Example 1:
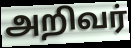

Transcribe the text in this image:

அறிவர்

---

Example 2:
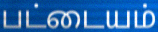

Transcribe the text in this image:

பட்டையம்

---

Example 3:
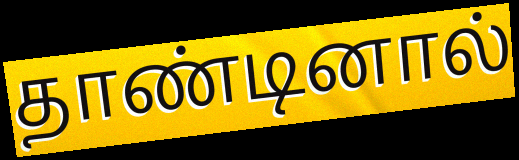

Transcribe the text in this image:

தாண்டினால்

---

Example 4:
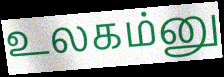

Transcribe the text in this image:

உலகம்னு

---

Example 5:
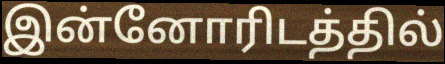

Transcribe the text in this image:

இன்னோரிடத்தில்